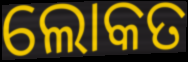
ଲୋକତ